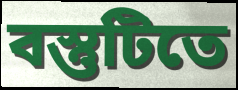
বস্তুটিতে